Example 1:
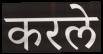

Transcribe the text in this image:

करले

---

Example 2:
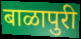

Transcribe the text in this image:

बाळापुरी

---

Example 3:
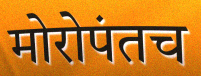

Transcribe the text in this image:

मोरोपंतच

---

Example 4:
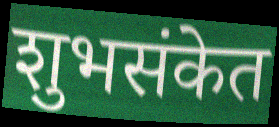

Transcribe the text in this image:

शुभसंकेत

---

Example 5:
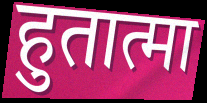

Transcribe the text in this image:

हुतात्मा